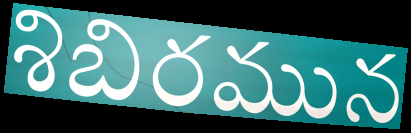
శిబిరమున